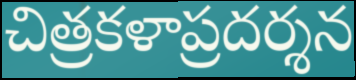
చిత్రకళాప్రదర్శన